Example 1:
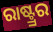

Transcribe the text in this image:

ରାଷ୍ଟ୍ର୍ରର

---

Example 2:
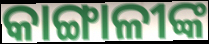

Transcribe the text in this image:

କାଙ୍ଗାଳୀଙ୍କ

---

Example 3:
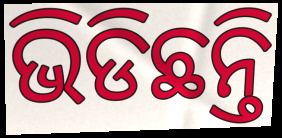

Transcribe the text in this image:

ଭିଡିଛନ୍ତି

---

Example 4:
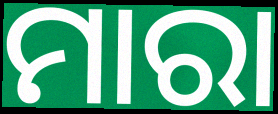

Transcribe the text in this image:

ମାରା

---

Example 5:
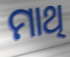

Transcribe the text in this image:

ମାଥି